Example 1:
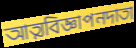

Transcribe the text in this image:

আত্মবিজ্ঞাপনদাতা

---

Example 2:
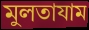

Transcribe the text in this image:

মুলতাযাম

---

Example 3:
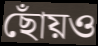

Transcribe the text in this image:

ছোঁয়ও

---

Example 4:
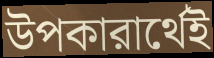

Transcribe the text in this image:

উপকারার্থেই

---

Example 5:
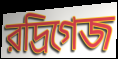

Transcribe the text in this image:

রদ্রিগেজ